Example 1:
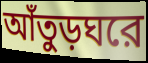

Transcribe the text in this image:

আঁতুড়ঘরে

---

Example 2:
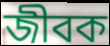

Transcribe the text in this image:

জীবক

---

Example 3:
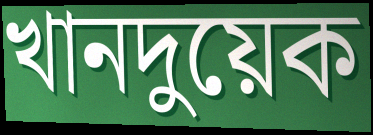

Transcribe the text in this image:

খানদুয়েক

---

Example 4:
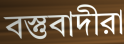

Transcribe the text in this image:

বস্তুবাদীরা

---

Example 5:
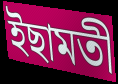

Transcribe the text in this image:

ইছামতী